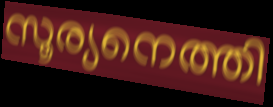
സൂര്യനെത്തി